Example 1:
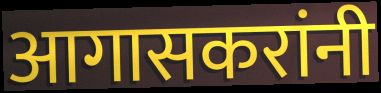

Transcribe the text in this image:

आगासकरांनी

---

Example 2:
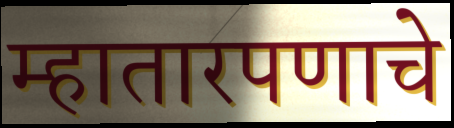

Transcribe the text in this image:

म्हातारपणाचे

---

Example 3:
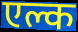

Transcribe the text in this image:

एल्क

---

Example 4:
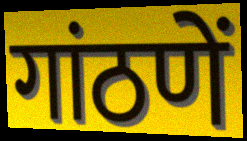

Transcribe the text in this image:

गांठणें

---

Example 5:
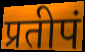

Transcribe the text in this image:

प्रतीपं